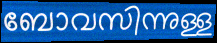
ബോവസിന്നുള്ള